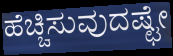
ಹೆಚ್ಚಿಸುವುದಷ್ಟೇ